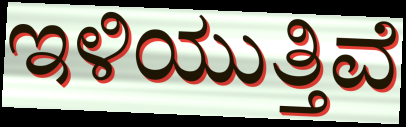
ಇಳಿಯುತ್ತಿವೆ